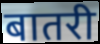
बातरी